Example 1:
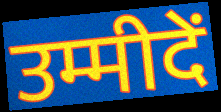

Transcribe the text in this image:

उम्‍मीदें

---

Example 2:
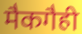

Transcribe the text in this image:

मैकगैही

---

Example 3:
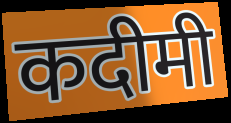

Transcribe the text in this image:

कदीमी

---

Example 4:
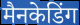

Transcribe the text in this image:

मैनकेडिंग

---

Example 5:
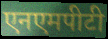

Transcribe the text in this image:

एनएमपीटी